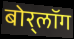
बोर्‌लॉग